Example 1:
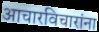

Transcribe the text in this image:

आचारविचारांना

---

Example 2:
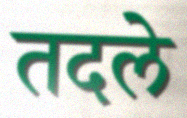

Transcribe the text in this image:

तदले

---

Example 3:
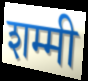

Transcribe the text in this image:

शम्मी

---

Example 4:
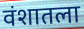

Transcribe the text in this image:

वंशातला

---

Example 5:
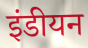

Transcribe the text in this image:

इंडीयन